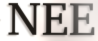
NEE